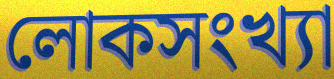
লোকসংখ্যা